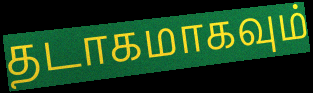
தடாகமாகவும்